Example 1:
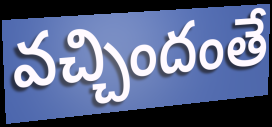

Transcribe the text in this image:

వచ్చిందంతే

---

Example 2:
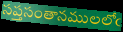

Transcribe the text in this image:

సప్తసంతానములలోఁ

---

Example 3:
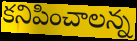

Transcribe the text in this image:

కనిపించాలన్న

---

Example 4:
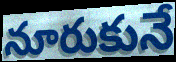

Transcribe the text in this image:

నూరుకునే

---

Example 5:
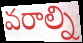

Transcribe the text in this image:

వరాల్ని